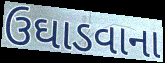
ઉઘાડવાના